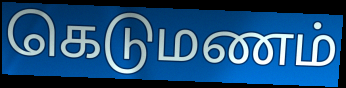
கெடுமணம்